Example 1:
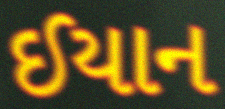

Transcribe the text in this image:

ઈયાન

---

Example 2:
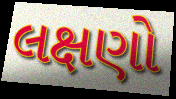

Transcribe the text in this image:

લક્ષણો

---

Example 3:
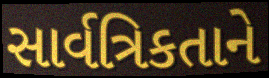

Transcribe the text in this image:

સાર્વત્રિકતાને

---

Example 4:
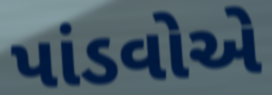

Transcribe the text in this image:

પાંડવોએ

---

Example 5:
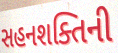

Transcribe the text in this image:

સહનશક્તિની